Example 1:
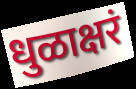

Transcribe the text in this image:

धुळाक्षरं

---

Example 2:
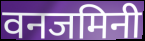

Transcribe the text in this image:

वनजमिनी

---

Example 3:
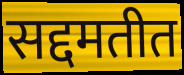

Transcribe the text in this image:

सद्दमतीत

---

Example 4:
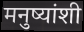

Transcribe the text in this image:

मनुष्यांशी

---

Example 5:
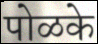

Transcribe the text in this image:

पोळके